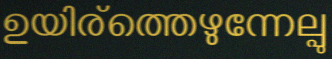
ഉയിര്ത്തെഴുന്നേല്പു